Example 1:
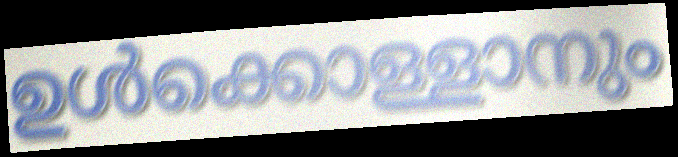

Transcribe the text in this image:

ഉൾക്കൊള്ളാനും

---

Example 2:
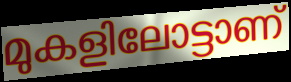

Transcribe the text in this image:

മുകളിലോട്ടാണ്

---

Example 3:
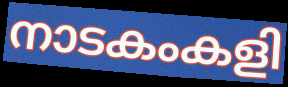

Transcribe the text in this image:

നാടകംകളി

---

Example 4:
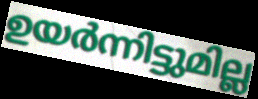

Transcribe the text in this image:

ഉയർന്നിട്ടുമില്ല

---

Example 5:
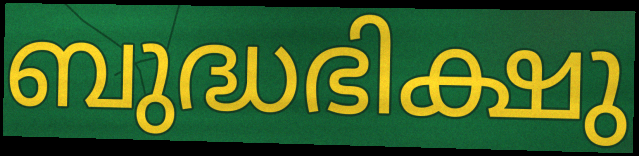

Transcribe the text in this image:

ബുദ്ധഭിക്ഷു